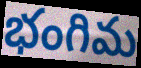
భంగిమ